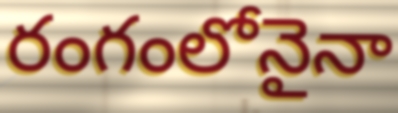
రంగంలోనైనా